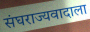
संघराज्यवादाला